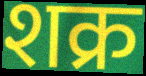
शक्र